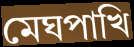
মেঘপাখি